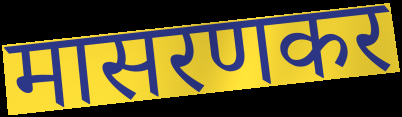
मासरणकर